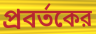
প্রবর্তকের